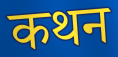
कथन